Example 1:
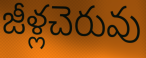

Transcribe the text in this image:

జీళ్లచెరువు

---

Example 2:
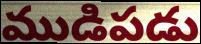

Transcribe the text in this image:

ముడిపడు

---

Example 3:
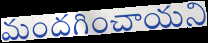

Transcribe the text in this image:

మందగించాయని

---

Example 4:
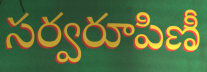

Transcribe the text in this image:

సర్వరూపిణీ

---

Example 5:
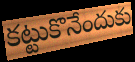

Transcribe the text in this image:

కట్టుకొనేందుకు